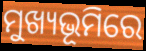
ମୁଖ୍ୟଭୂମିରେ